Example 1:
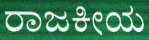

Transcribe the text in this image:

ರಾಜಕೀಯ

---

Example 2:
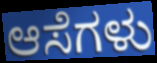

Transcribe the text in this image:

ಆಸೆಗಳು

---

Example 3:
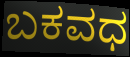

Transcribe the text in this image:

ಬಕವಧ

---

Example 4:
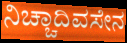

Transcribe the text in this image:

ನಿಚ್ಚಾದಿವಸೇನ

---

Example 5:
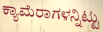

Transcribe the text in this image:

ಕ್ಯಾಮೆರಾಗಳನ್ನಿಟ್ಟು